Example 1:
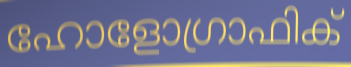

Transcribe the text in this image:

ഹോളോഗ്രാഫിക്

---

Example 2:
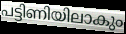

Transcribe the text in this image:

പട്ടിണിയിലാകും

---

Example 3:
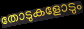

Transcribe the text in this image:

തോടുകളോടും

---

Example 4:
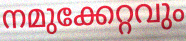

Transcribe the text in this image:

നമുക്കേറ്റവും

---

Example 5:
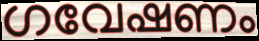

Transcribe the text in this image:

ഗവേഷണം